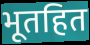
भूतहित